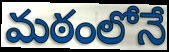
మఠంలోనే